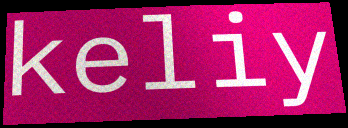
keliy